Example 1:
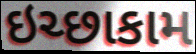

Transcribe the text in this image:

ઇચ્છાકામ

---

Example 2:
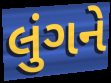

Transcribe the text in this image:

લુંગને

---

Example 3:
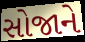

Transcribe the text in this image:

સોજાને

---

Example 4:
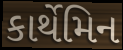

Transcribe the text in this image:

કાર્થેમિન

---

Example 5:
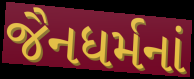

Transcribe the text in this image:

જૈનધર્મનાં